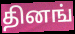
தினங்